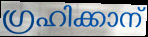
ഗ്രഹിക്കാന്